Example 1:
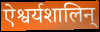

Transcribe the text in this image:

ऐश्वर्यशालिन्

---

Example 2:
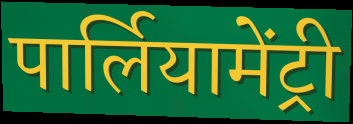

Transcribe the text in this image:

पार्लियामेंट्री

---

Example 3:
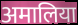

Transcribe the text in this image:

अमालिया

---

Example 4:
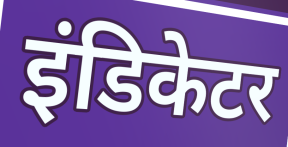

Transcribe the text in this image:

इंडिकेटर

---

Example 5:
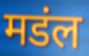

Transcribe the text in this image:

मडंल